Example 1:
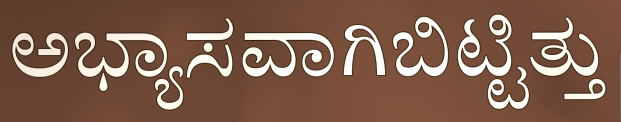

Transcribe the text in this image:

ಅಭ್ಯಾಸವಾಗಿಬಿಟ್ಟಿತ್ತು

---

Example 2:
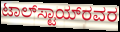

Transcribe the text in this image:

ಟಾಲ್‌ಸ್ಟಾಯ್‌ರವರ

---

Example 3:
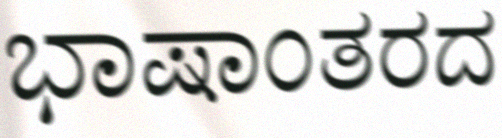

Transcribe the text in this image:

ಭಾಷಾಂತರದ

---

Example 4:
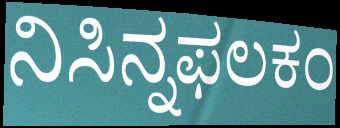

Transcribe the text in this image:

ನಿಸಿನ್ನಫಲಕಂ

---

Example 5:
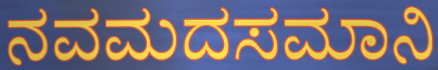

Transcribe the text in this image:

ನವಮದಸಮಾನಿ